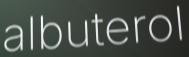
albuterol